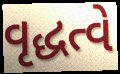
વૃદ્ધત્વે